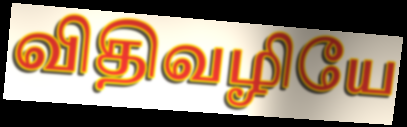
விதிவழியே